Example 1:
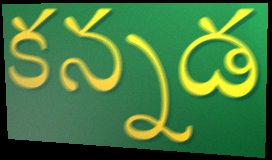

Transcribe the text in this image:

కన్నడ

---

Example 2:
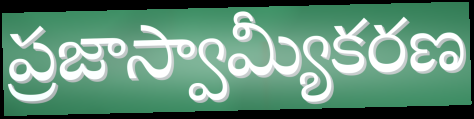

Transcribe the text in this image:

ప్రజాస్వామ్యీకరణ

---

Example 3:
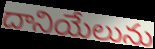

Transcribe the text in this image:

దానియేలును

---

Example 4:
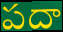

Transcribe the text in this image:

పదా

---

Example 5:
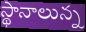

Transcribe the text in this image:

స్థానాలున్న